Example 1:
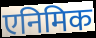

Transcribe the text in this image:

एनिमिक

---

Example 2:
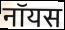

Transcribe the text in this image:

नॉयस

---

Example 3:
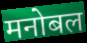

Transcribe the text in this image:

मनोबल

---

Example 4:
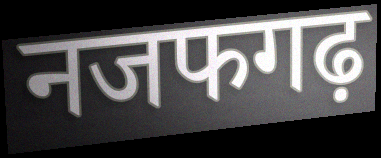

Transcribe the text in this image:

नजफगढ़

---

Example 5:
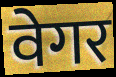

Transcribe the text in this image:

वेगर